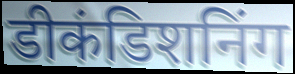
डीकंडिशनिंग